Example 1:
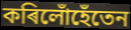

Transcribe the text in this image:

কৰিলোঁহেঁতেন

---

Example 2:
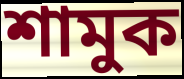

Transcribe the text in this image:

শামুক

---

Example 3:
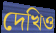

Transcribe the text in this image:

দেখিও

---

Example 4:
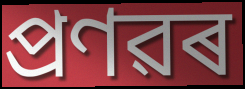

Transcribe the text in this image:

প্ৰণৱৰ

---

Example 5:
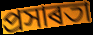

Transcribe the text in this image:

প্ৰসাৰতা